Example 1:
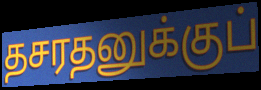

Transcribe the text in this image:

தசரதனுக்குப்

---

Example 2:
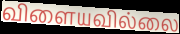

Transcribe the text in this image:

விளையவில்லை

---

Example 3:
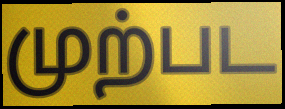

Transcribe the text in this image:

முற்பட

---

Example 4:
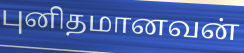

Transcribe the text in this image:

புனிதமானவன்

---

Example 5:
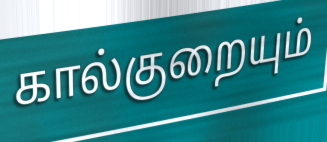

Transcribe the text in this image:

கால்குறையும்